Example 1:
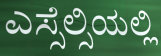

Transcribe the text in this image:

ಎಸ್ಸೆಲ್ಸಿಯಲ್ಲಿ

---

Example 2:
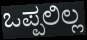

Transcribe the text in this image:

ಒಪ್ಪಲಿಲ್ಲ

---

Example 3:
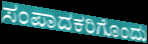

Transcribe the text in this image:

ಸಂಪಾದಕರಿಗೊಂದು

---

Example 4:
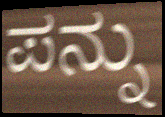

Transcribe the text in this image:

ಪನ್ನು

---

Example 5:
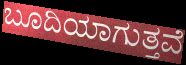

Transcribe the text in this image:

ಬೂದಿಯಾಗುತ್ತವೆ